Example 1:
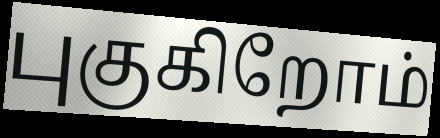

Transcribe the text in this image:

புகுகிறோம்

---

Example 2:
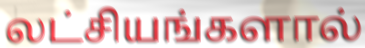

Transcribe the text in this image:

லட்சியங்களால்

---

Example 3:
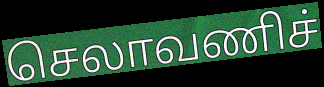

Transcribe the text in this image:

செலாவணிச்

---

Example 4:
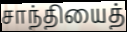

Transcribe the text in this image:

சாந்தியைத்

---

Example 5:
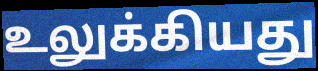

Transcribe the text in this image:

உலுக்கியது